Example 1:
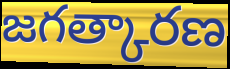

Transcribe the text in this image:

జగత్కారణ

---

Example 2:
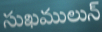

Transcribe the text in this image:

సుఖములున్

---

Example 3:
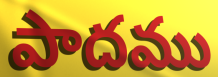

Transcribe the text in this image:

పాదము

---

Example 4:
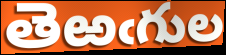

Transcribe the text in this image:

తెఱఁగుల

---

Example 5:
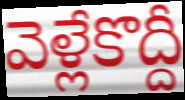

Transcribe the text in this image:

వెళ్లేకొద్దీ